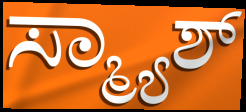
ಸ್ಮ್ಯಾಶ್